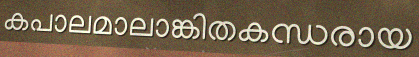
കപാലമാലാങ്കിതകന്ധരായ